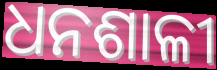
ଧନଶାଳୀ